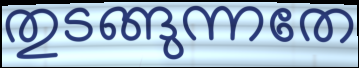
തുടങ്ങുന്നതേ